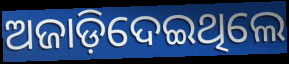
ଅଜାଡ଼ିଦେଇଥିଲେ